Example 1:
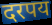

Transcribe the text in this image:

दरपय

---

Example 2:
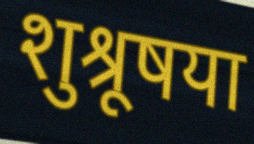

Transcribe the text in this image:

शुश्रूषया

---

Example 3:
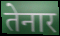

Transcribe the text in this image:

तेनार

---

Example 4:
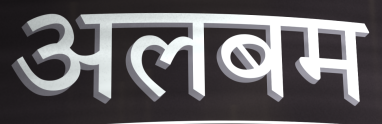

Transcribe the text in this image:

अलबम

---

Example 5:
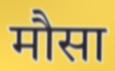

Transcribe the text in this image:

मौसा